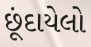
છૂંદાયેલો